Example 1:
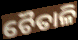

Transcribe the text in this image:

ଚୈତାଳି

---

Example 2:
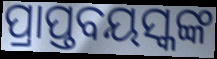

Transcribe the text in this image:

ପ୍ରାପ୍ତବୟସ୍କଙ୍କ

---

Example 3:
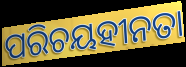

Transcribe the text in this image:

ପରିଚୟହୀନତା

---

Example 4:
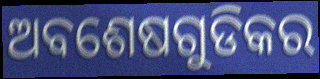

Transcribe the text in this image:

ଅବଶେଷଗୁଡିକର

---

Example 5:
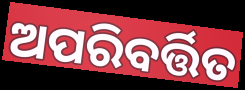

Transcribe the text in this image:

ଅପରିବର୍ତ୍ତିତ